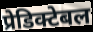
प्रेडिक्टेबल